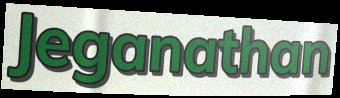
Jeganathan